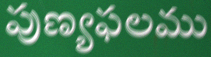
పుణ్యఫలము